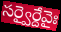
సర్వైర్దేవైః